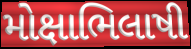
મોક્ષાભિલાષી